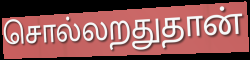
சொல்லறதுதான்